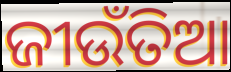
ଜୀଉଁତିଆ